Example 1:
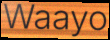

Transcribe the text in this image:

Waayo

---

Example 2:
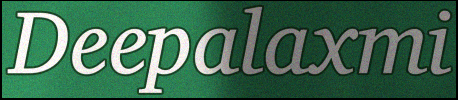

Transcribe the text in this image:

Deepalaxmi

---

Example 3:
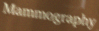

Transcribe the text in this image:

Mammography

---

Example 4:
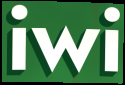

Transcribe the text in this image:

iwi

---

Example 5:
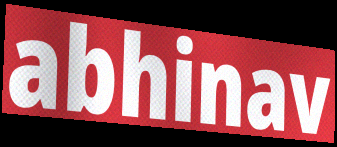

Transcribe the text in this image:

abhinav